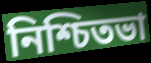
নিশ্চিতভা